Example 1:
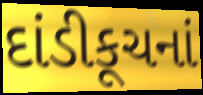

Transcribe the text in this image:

દાંડીકૂચનાં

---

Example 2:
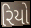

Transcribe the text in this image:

રિયો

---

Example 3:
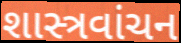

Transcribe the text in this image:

શાસ્ત્રવાંચન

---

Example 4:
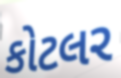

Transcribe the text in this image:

કોટલર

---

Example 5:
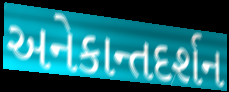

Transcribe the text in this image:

અનેકાન્તદર્શન